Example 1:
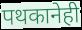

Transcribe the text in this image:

पथकानेही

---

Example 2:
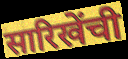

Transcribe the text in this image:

सारिखेंची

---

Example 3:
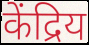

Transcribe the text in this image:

केंद्रिय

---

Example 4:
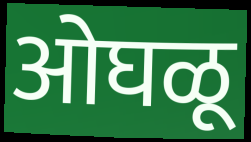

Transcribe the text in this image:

ओघळू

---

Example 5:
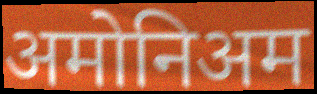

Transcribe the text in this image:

अमोनिअम